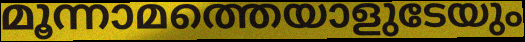
മൂന്നാമത്തെയാളുടേയും